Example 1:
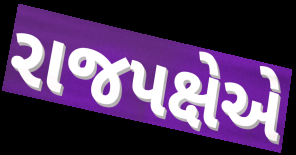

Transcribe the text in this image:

રાજપક્ષેએ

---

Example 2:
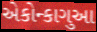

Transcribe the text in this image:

એકોન્કાગુઆ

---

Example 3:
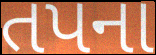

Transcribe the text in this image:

તપના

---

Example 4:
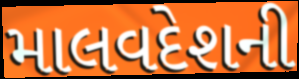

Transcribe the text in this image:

માલવદેશની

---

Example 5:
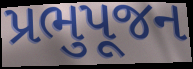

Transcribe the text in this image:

પ્રભુપૂજન